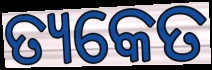
ତ୍ୟକେତ